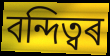
বন্দিত্বৰ